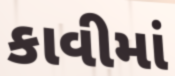
કાવીમાં